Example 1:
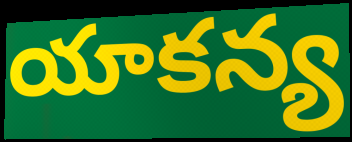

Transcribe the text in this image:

యాకన్య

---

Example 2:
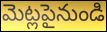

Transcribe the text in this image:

మెట్లపైనుండి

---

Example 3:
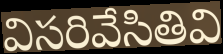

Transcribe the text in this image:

విసరివేసితివి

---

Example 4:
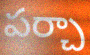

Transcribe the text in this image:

పర్చా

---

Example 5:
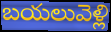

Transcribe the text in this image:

బయలువెళ్లి